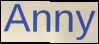
Anny